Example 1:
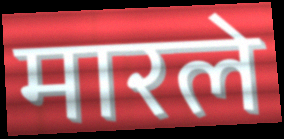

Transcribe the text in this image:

मारले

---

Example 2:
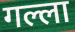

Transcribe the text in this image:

गल्ला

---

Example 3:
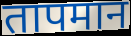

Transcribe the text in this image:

तापमान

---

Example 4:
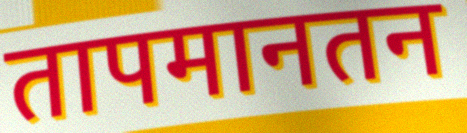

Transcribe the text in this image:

तापमानतन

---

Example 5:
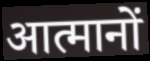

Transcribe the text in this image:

आत्मानों